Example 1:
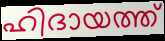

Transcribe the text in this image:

ഹിദായത്ത്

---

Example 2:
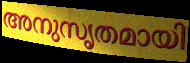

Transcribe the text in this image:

അനുസൃതമായി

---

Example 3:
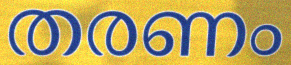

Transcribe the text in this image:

തരണം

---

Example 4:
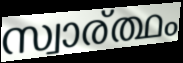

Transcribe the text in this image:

സ്വാര്ത്ഥം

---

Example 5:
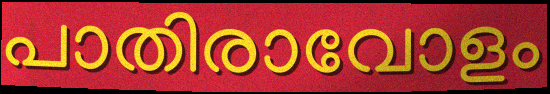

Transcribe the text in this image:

പാതിരാവോളം